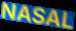
NASAL